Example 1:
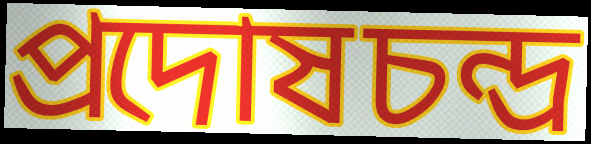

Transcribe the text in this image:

প্রদোষচন্দ্র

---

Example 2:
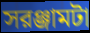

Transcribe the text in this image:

সরঞ্জামটা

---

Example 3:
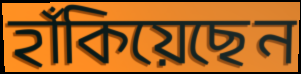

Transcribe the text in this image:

হাঁকিয়েছেন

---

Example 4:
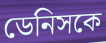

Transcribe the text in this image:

ডেনিসকে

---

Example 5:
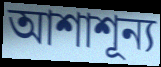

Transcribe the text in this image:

আশাশূন্য